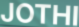
JOTHI